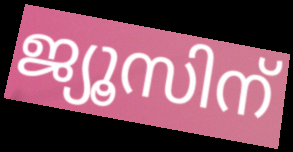
ജ്യൂസിന്